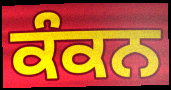
ਕੰਕਨ